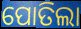
ପୋତିଲା